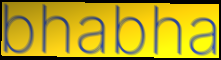
bhabha